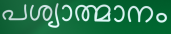
പശ്യാത്മാനം